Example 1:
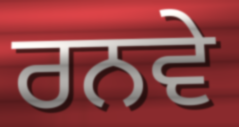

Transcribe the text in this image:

ਰਨਵੇ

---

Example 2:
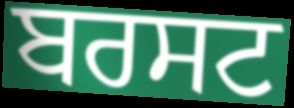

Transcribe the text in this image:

ਬਰਸਟ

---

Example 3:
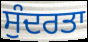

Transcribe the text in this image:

ਸੁੰਦਰਤਾ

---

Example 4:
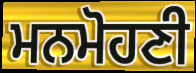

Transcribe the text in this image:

ਮਨਮੋਹਣੀ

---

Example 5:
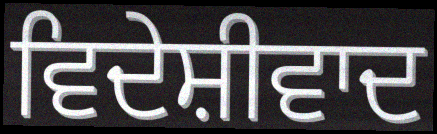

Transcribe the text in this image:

ਵਿਦੇਸ਼ੀਵਾਦ